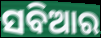
ସବିଆର